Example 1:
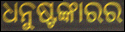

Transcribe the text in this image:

ଧନୁଷ୍ଟଙ୍କାରର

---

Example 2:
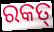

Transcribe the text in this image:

ରକତ୍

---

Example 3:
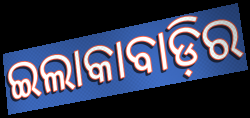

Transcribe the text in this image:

ଇଲାକାବାଡ଼ିର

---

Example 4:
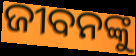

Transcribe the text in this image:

ଜୀବନଙ୍କୁ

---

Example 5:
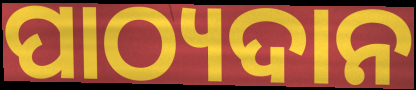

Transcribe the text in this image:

ପାଠ୍ୟଦାନ